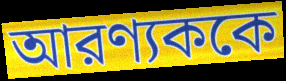
আরণ্যককে